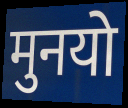
मुनयो